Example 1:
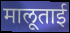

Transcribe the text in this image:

मालूताई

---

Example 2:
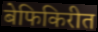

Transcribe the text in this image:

बेफिकिरीत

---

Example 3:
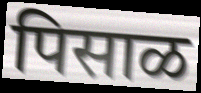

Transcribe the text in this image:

पिसाळ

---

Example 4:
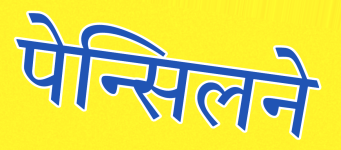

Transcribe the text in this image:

पेन्सिलने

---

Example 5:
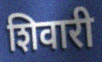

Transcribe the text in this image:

शिवारी